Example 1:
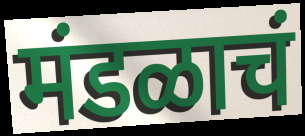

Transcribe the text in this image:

मंडळाचं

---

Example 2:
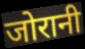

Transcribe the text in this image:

जोरानी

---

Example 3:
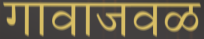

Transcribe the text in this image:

गावाजवळ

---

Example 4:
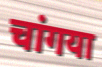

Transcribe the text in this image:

चांगया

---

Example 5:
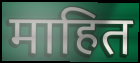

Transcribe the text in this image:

माहित